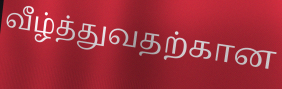
வீழ்த்துவதற்கான